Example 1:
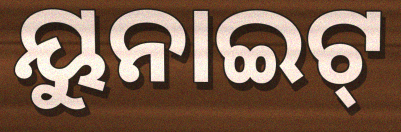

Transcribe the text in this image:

ୟୁନାଇଟ୍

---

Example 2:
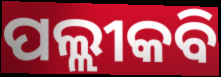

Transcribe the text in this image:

ପଲ୍ଲୀକବି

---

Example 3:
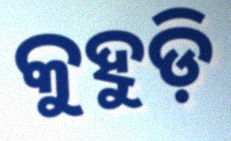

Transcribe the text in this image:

କୁହୁଡ଼ି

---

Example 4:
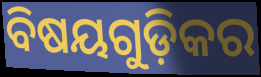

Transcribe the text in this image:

ବିଷୟଗୁଡ଼ିକର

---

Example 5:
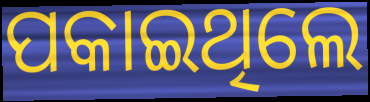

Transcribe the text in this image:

ପକାଇଥିଲେ